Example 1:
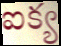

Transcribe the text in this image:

ఐక్య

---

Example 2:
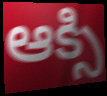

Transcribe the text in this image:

ఆక్సి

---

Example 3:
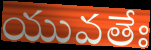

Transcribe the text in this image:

యువతేః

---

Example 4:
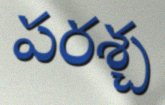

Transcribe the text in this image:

పరశ్చ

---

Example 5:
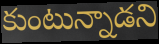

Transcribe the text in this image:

కుంటున్నాడని